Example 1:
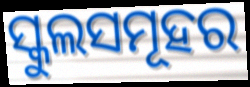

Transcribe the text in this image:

ସ୍କୁଲସମୂହର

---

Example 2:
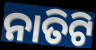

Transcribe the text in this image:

ନାତିଟି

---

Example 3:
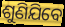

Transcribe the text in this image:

ଶୁଣିଯିବେ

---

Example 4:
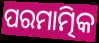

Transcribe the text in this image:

ପରମାତ୍ମିକ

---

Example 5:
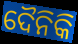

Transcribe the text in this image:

ଦୈନିକି